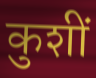
कुशीं